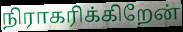
நிராகரிக்கிறேன்